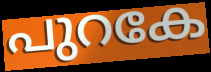
പുറകേ